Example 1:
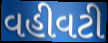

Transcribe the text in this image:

વહીવટી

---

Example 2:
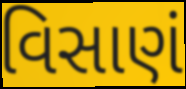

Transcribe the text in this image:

વિસાણં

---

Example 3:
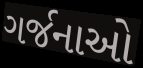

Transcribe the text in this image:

ગર્જનાઓ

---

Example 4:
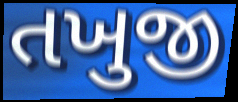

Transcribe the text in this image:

તખુજી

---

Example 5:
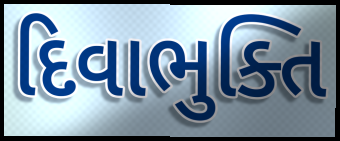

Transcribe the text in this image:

દિવાભુક્તિ